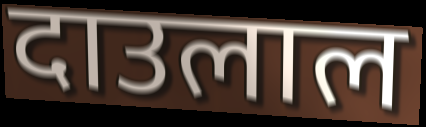
दाउलाल